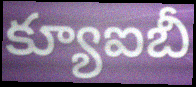
క్యూఐబీ